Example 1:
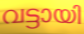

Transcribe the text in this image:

വട്ടായി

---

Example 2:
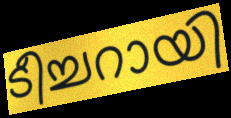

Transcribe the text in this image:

ടീച്ചറായി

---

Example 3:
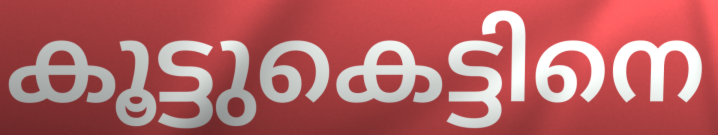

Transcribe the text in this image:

കൂട്ടുകെട്ടിനെ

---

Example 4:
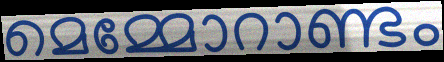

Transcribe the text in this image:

മെമ്മോറാണ്ടം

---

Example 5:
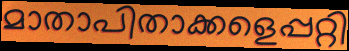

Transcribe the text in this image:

മാതാപിതാക്കളെപ്പറ്റി